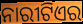
ନାରୀଟିଏର